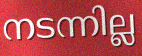
നടന്നില്ല